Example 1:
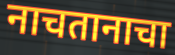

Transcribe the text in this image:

नाचतानाचा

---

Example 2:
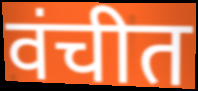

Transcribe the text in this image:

वंचीत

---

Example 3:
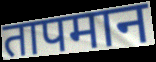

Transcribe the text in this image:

तापमान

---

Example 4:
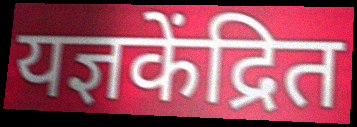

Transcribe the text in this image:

यज्ञकेंद्रित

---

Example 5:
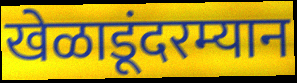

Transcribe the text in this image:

खेळाडूंदरम्यान